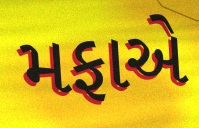
મફાએ